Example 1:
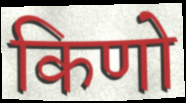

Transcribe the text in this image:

किणो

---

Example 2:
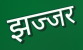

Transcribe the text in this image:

झज्जर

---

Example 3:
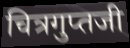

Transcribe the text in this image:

चित्रगुप्तजी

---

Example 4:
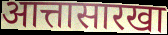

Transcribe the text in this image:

आत्तासारखा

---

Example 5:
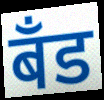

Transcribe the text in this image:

बॅंड